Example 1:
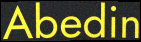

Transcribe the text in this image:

Abedin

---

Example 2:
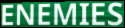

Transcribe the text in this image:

ENEMIES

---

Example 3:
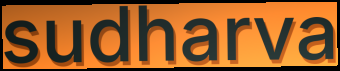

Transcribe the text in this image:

sudharva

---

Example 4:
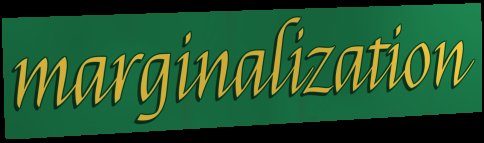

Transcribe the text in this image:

marginalization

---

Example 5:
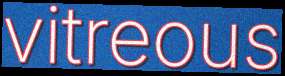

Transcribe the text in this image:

vitreous